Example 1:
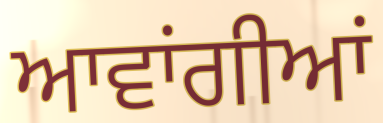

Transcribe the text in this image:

ਆਵਾਂਗੀਆਂ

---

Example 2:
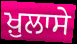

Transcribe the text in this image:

ਖ਼ੁਲਾਸੇ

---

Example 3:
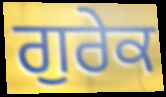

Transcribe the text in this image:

ਗੁਰੇਕ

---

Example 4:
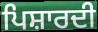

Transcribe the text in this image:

ਪਿਸ਼ਾਰਦੀ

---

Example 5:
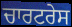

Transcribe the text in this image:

ਚਾਰਟਰੇਸ